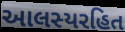
આલસ્યરહિત